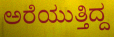
ಅರೆಯುತ್ತಿದ್ದ